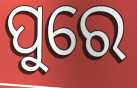
ପୁରେ